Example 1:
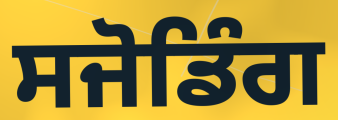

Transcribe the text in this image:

ਸਜੋਡਿੰਗ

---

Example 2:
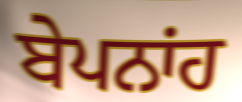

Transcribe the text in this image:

ਬੇਪਨਾਂਹ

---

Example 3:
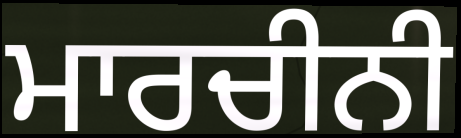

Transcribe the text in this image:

ਮਾਰਚੀਨੀ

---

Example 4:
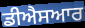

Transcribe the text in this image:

ਡੀਐਸਆਰ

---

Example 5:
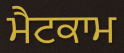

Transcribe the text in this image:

ਮੈਟਕਾਮ